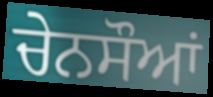
ਚੇਨਸੌਆਂ